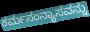
ಕರ್ಮಸಂನ್ಯಾಸವನ್ನು